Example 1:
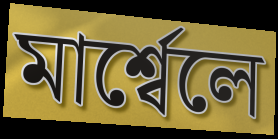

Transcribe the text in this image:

মাৰ্শ্বেলে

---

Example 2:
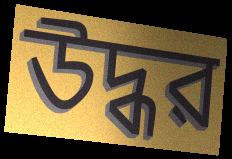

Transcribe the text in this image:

উদ্ধৱ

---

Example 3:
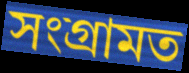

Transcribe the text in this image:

সংগ্ৰামত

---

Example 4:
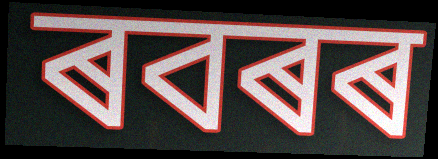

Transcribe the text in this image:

ৰবৰৰ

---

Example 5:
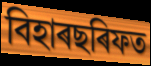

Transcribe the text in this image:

বিহাৰছৰিফত